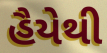
હૈયેથી